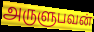
அருளுபவன்